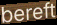
bereft